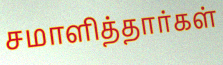
சமாளித்தார்கள்